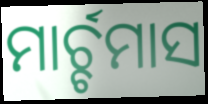
ମାର୍ଚ୍ଚମାସ